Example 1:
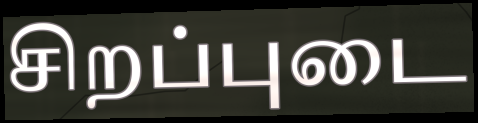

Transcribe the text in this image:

சிறப்புடை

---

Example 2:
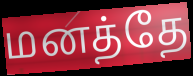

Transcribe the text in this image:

மனத்தே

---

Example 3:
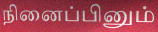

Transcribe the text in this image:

நினைப்பினும்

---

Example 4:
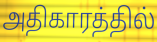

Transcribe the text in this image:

அதிகாரத்தில்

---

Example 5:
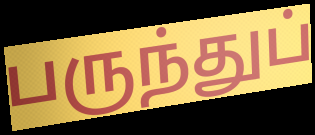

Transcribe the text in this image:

பருந்துப்